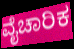
ವೈಚಾರಿಕ